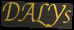
DALYs